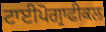
ਟਾਈਪੋਗ੍ਰਾਫੀਕਲ